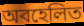
অবহেলিত